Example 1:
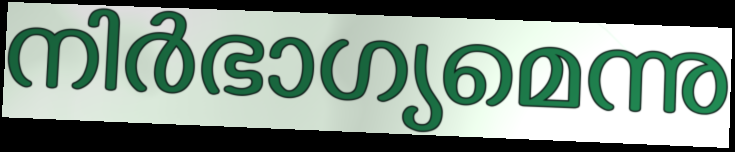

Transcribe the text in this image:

നിർഭാഗ്യമെന്നു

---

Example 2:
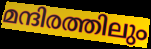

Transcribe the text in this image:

മന്ദിരത്തിലും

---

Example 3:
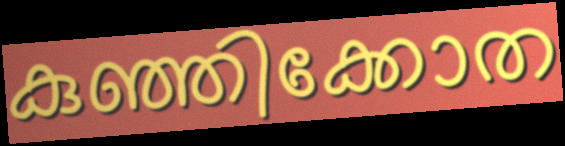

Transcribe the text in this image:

കുഞ്ഞിക്കോത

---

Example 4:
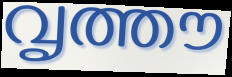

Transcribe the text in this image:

വൃത്തൗ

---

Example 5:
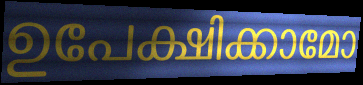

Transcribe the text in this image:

ഉപേക്ഷിക്കാമോ